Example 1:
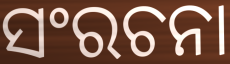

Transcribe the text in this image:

ସଂରଚନା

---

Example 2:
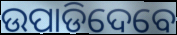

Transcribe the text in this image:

ଉପାଡିଦେବେ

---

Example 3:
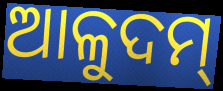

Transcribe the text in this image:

ଆଳୁଦମ୍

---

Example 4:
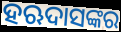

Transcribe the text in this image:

ହଋଦାସଙ୍କର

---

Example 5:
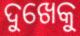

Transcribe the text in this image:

ଦୁଖେକୁ